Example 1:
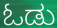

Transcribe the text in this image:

ಓಡು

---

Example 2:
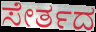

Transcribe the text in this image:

ಸೇರ್ತದ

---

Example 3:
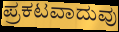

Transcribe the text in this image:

ಪ್ರಕಟವಾದುವು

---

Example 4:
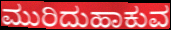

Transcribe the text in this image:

ಮುರಿದುಹಾಕುವ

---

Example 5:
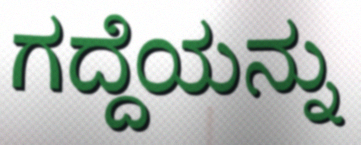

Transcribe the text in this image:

ಗದ್ದೆಯನ್ನು